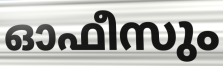
ഓഫീസും